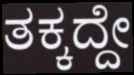
ತಕ್ಕದ್ದೇ